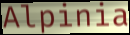
Alpinia